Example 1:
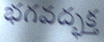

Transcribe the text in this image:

భగవద్భక్త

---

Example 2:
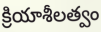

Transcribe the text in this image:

క్రియాశీలత్వం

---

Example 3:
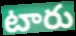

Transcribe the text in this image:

టారు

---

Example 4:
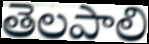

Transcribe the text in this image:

తెలపాలి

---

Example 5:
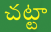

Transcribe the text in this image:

చట్టా